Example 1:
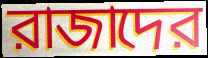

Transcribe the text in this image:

রাজাদের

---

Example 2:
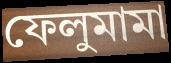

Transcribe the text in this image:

ফেলুমামা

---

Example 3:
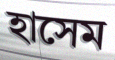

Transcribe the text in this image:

হাসেম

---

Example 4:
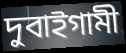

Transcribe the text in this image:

দুবাইগামী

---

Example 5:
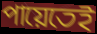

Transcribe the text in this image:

পায়েতেই